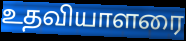
உதவியாளரை